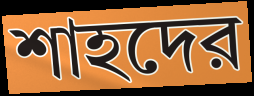
শাহদের